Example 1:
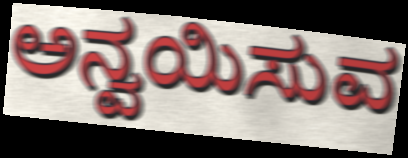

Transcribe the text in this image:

ಅನ್ವಯಿಸುವ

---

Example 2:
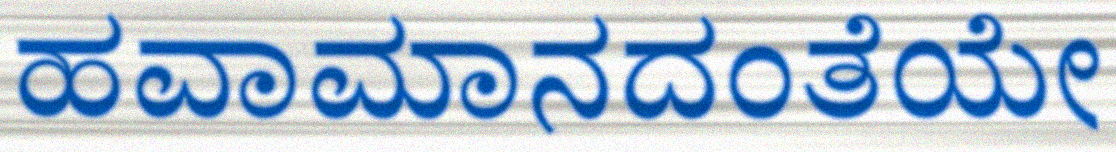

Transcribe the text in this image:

ಹವಾಮಾನದಂತೆಯೇ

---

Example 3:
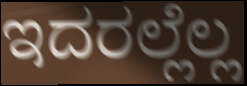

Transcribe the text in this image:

ಇದರಲ್ಲೆಲ್ಲ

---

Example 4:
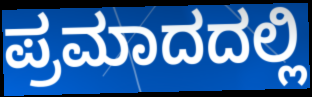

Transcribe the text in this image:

ಪ್ರಮಾದದಲ್ಲಿ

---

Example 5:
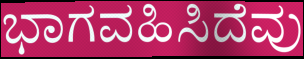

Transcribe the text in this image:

ಭಾಗವಹಿಸಿದೆವು